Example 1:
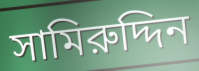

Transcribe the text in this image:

সামিরুদ্দিন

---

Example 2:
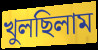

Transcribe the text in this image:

খুলছিলাম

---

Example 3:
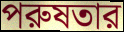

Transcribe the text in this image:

পরুষতার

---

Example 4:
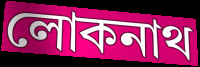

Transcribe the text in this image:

লোকনাথ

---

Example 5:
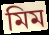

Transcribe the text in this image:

মিম